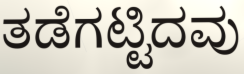
ತಡೆಗಟ್ಟಿದವು